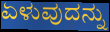
ಏಳುವುದನ್ನು